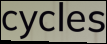
cycles